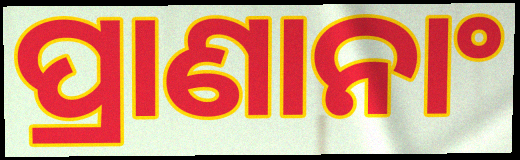
ପ୍ରାଣାନାଂ